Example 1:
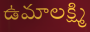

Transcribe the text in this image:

ఉమాలక్ష్మి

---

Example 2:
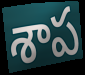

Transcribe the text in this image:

శాప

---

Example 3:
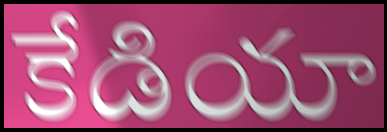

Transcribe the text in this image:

కేడియా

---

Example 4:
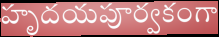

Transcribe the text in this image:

హృదయపూర్వకంగా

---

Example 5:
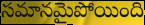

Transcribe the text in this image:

సమానమైపోయింది